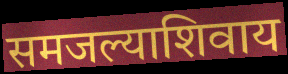
समजल्याशिवाय